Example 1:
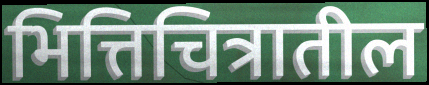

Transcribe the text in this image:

भित्तिचित्रातील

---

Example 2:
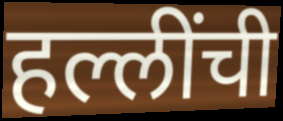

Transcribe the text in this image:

हल्लींची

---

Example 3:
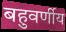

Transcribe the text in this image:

बहुवर्णीय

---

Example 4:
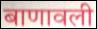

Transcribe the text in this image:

बाणावली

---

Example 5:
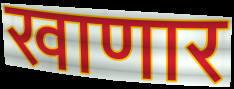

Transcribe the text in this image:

खाणार